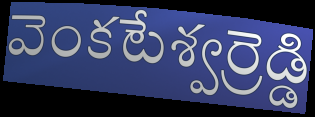
వెంకటేశ్వర్రెడ్డి